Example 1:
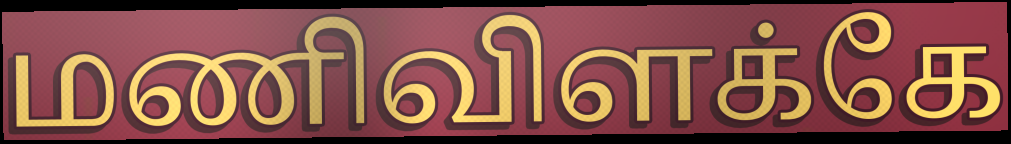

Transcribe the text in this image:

மணிவிளக்கே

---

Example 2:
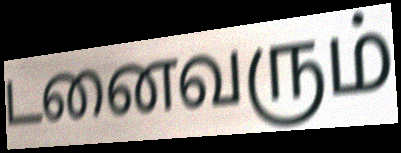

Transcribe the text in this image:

டனைவரும்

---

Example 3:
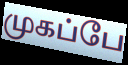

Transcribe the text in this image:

முகப்பே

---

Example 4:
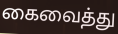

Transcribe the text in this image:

கைவைத்து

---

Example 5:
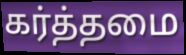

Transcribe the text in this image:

கர்த்தமை